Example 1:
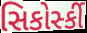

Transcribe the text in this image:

સિકોર્સ્કી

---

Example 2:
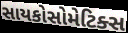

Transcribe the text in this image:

સાયકોસોમેટિક્સ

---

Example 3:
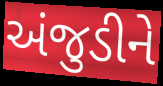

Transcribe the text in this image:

અંજુડીને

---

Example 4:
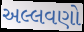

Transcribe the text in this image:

અલ્લવણો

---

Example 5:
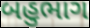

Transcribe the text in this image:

બહુભાગ